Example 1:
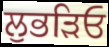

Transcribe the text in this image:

ਲੁਭੜਿਓ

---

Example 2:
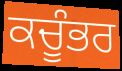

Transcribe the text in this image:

ਕਚੂੰਭਰ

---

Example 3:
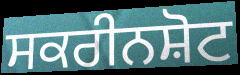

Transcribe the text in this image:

ਸਕਰੀਨਸ਼ੋਟ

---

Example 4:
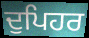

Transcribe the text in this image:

ਦੁਪਿਹਰ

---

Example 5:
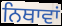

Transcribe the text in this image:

ਨਿਥਾਵਾਂ